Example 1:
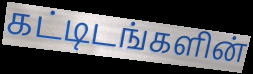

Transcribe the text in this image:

கட்டிடங்களின்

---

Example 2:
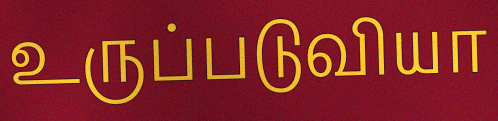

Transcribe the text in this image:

உருப்படுவியா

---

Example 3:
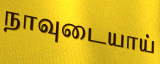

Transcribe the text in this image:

நாவுடையாய்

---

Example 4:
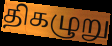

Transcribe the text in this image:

திகழுறு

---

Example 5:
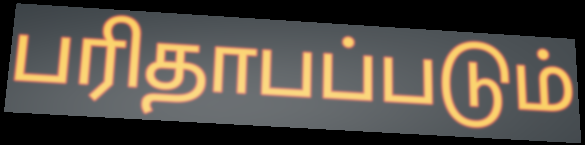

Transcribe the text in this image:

பரிதாபப்படும்